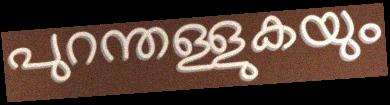
പുറന്തള്ളുകയും